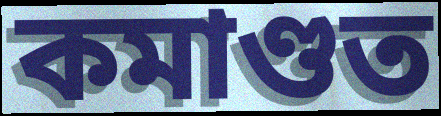
কমাণ্ডত